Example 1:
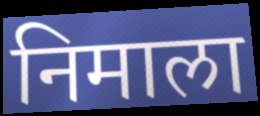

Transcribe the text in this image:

निमाला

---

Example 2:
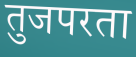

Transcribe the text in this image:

तुजपरता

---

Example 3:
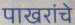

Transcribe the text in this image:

पाखरांचे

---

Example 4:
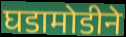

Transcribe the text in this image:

घडामोडीने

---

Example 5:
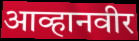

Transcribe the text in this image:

आव्हानवीर